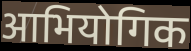
आभियोगिक